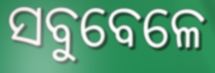
ସବୁବେଳେ